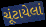
ચૂંટાયેલાં